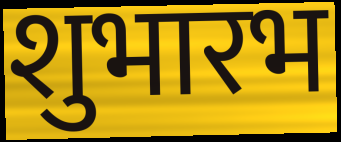
शुभारभ